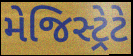
મેજિસ્ટ્રેટે